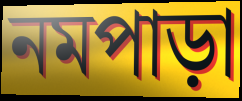
নমপাড়া